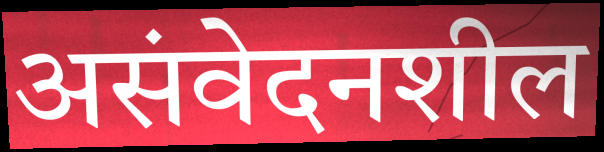
असंवेदनशील